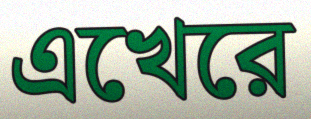
এখেরে